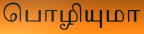
பொழியுமா